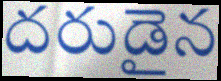
దరుడైన